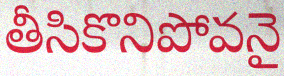
తీసికొనిపోవనై